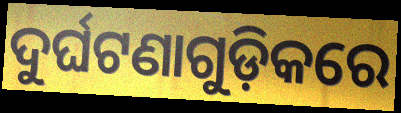
ଦୁର୍ଘଟଣାଗୁଡ଼ିକରେ